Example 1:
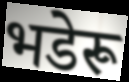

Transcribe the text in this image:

भडेरू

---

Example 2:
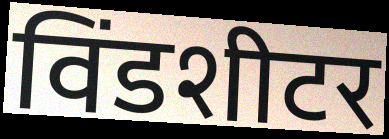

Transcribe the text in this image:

विंडशीटर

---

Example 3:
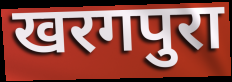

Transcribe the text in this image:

खरगपुरा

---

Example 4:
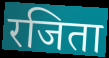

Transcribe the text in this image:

रजिता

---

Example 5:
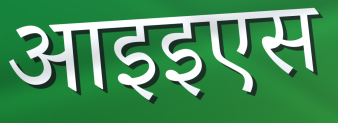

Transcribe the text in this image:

आइइएस